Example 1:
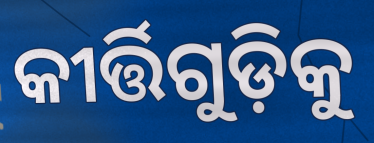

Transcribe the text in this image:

କୀର୍ତ୍ତିଗୁଡ଼ିକୁ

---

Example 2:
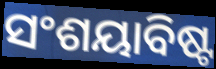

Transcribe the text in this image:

ସଂଶୟାବିଷ୍ଟ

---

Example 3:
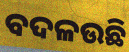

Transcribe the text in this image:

ବଦଳଉଛି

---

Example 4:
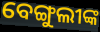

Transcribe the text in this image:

ବେଙ୍ଗୁଲୀଙ୍କ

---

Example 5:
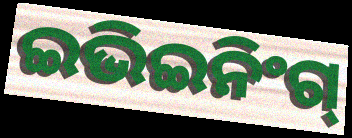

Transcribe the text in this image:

ଇଭିଇନିଂଗ୍